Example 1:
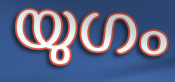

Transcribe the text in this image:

യുഗം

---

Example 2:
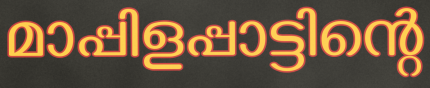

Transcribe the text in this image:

മാപ്പിളപ്പാട്ടിന്റെ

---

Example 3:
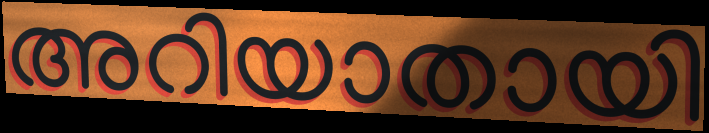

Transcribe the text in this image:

അറിയാതായി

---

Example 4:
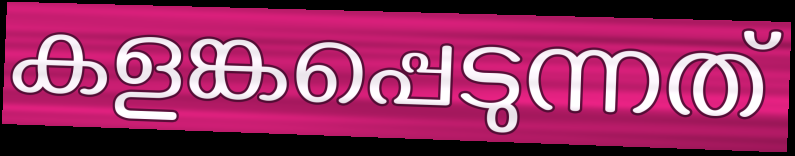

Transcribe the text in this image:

കളങ്കപ്പെടുന്നത്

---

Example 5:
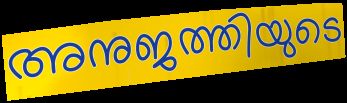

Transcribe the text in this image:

അനുജത്തിയുടെ